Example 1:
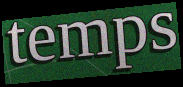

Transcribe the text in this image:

temps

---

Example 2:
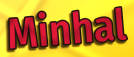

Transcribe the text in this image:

Minhal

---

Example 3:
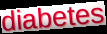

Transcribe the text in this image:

diabetes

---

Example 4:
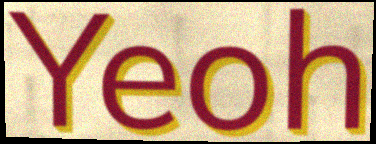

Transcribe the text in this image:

Yeoh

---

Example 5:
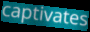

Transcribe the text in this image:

captivates